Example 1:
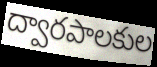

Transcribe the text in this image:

ద్వారపాలకుల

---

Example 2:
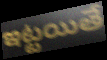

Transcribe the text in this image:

ఇట్టయితే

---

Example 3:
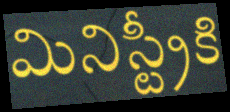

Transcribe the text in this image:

మినిస్ట్రీకి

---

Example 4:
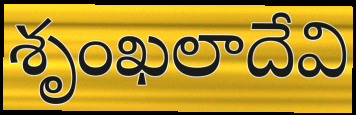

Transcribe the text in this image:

శృంఖలాదేవి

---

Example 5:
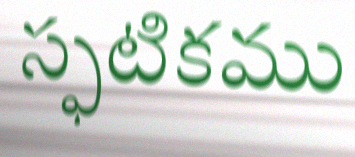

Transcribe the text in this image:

స్ఫటికము